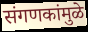
संगणकांमुळे